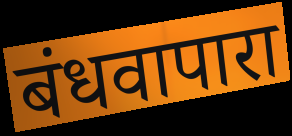
बंधवापारा